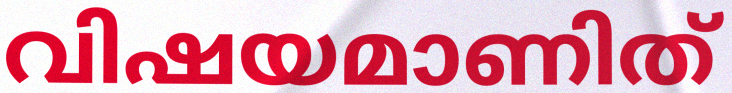
വിഷയമാണിത്